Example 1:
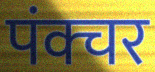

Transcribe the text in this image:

पंक्चर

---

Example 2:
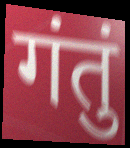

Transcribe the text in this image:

गंतुं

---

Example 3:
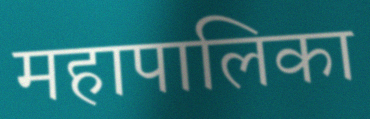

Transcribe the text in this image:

महापालिका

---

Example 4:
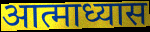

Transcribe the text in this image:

आत्माध्यास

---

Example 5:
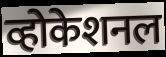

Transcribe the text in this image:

व्होकेशनल